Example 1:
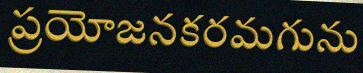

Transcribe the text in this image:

ప్రయోజనకరమగును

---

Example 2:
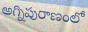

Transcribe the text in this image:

అగ్నిపురాణంలో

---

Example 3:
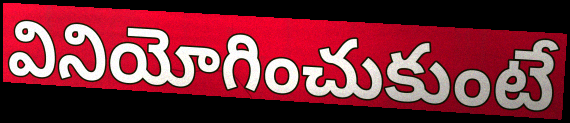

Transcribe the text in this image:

వినియోగించుకుంటే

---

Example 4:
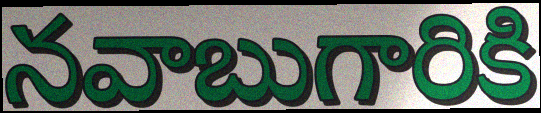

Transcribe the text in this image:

నవాబుగారికి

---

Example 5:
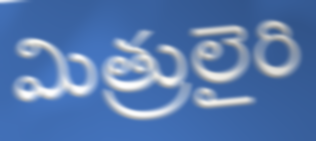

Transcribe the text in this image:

మిత్రులైరి